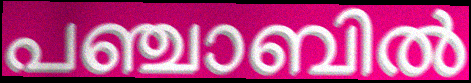
പഞ്ചാബിൽ